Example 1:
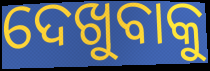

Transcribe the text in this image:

ଦେଖୁବାକୁ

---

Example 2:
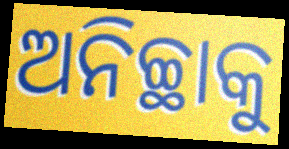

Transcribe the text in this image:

ଅନିଚ୍ଛାକୁ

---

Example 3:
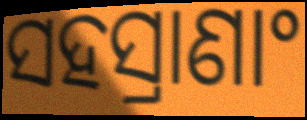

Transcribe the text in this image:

ସହସ୍ରାଣାଂ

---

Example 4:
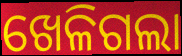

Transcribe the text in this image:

ଖେଳିଗଲା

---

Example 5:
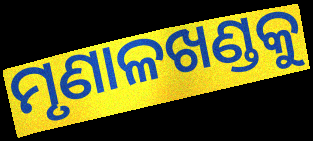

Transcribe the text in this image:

ମୃଣାଳଖଣ୍ଡକୁ